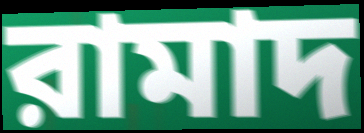
রামাদ